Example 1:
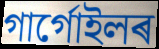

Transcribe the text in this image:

গাৰ্গোইলৰ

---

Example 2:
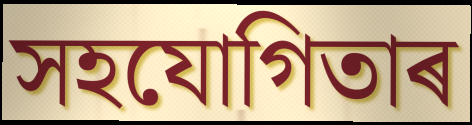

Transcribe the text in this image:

সহযোগিতাৰ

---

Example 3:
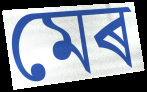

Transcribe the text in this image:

মেৰ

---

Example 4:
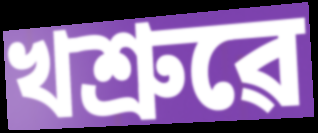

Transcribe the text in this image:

খশ্ৰুৱে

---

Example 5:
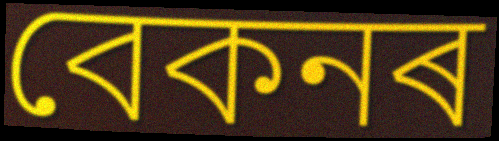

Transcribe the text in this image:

বেকনৰ